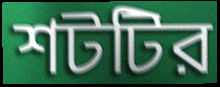
শটটির